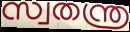
സ്വതന്ത്ര